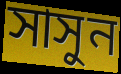
সাসুন